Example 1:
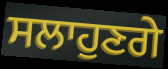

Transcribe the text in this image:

ਸਲਾਹੁਣਗੇ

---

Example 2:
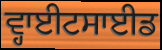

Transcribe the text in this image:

ਵ੍ਹਾਈਟਸਾਈਡ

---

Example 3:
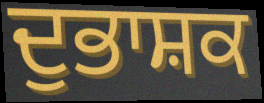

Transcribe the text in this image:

ਦੁਭਾਸ਼ਕ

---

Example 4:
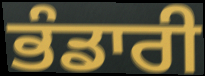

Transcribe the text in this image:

ਭੰਡਾਰੀ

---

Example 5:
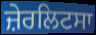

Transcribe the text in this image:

ਜ਼ੇਰਲਿਟਸਾ